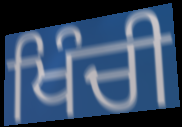
ਖਿੰਚੀ